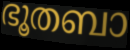
ഭൂതബാ